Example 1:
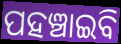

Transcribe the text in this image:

ପହଞ୍ଚାଇବି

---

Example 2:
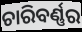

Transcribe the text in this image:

ଚାରିବର୍ଣ୍ଣର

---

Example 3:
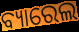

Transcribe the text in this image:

ବ୍ୟାରେଲ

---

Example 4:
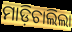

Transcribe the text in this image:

ମାଡ଼ିଚାଲିଲା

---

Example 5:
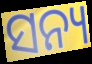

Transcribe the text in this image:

ସନ୍ୟ